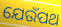
ଯେଉଁପଥ